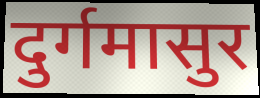
दुर्गमासुर